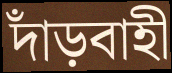
দাঁড়বাহী